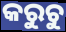
କରୁଚୁ